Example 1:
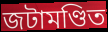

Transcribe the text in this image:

জটামণ্ডিত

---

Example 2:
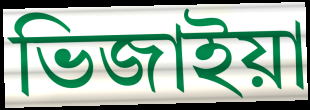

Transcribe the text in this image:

ভিজাইয়া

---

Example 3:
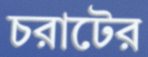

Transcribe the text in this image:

চরাটের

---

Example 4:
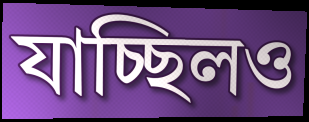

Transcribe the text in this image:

যাচ্ছিলও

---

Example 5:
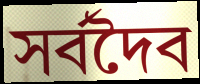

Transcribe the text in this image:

সর্বদৈব